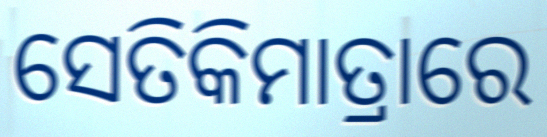
ସେତିକିମାତ୍ରାରେ